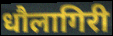
धौलागिरी